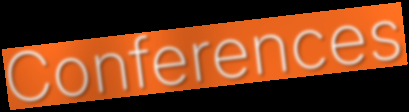
Conferences